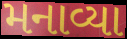
મનાવ્યા